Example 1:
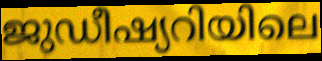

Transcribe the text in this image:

ജുഡീഷ്യറിയിലെ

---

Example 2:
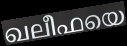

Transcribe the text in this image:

ഖലീഫയെ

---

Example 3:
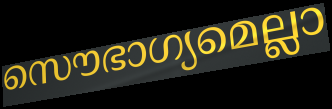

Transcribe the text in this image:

സൌഭാഗ്യമെല്ലാ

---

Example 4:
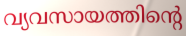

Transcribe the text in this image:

വ്യവസായത്തിന്റെ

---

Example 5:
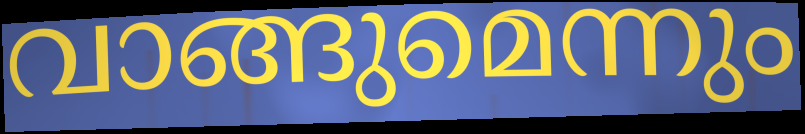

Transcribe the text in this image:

വാങ്ങുമെന്നും